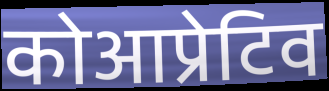
कोआप्रेटिव